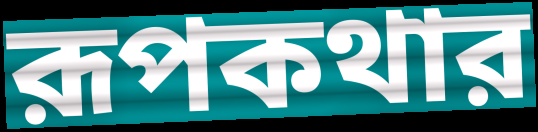
রূপকথার